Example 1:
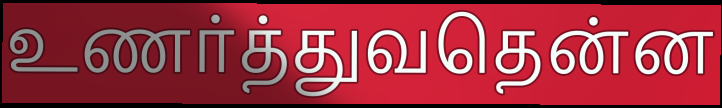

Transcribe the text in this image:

உணர்த்துவதென்ன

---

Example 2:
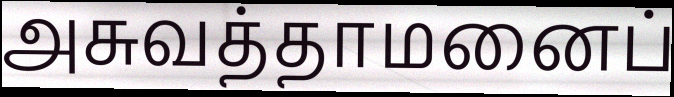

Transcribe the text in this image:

அசுவத்தாமனைப்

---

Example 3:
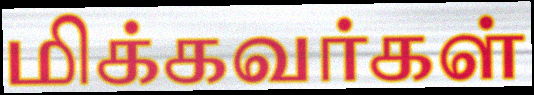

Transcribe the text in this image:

மிக்கவர்கள்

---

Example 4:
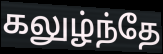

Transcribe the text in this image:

கலுழ்ந்தே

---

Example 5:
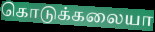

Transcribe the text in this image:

கொடுக்கலையா